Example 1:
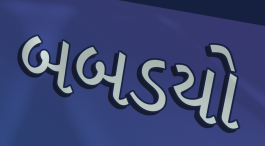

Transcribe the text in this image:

બબડયો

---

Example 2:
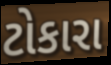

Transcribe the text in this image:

ટોકારા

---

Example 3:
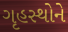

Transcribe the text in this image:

ગૃહસ્થોને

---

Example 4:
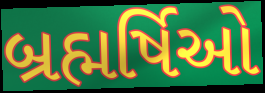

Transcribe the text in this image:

બ્રહ્મર્ષિઓ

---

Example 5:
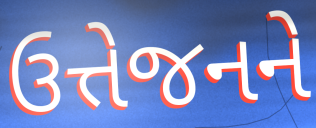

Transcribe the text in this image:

ઉત્તેજનને